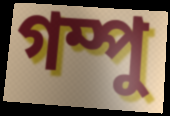
গম্পু